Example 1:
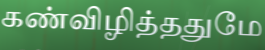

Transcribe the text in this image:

கண்விழித்ததுமே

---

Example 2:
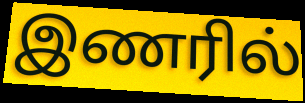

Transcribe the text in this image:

இணரில்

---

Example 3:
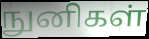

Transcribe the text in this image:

நுனிகள்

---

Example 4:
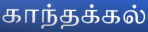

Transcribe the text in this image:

காந்தக்கல்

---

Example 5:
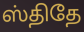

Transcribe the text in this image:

ஸ்திதே